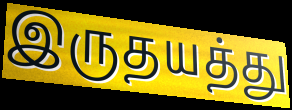
இருதயத்து